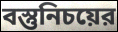
বস্তুনিচয়ের